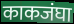
काकजंघा